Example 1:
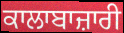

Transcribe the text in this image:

ਕਾਲਾਬਾਜ਼ਾਰੀ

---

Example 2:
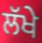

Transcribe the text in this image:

ਲੱਖੇ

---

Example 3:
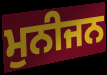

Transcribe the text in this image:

ਮੁਨੀਜਨ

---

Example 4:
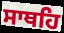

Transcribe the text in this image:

ਸਾਥਹਿ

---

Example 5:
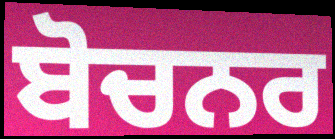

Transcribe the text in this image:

ਬੋਚਨਰ